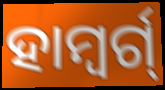
ହାମ୍ବର୍ଗ୍